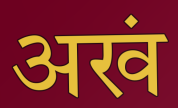
अखं